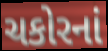
ચકોરનાં